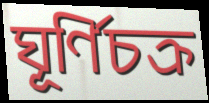
ঘূর্ণিচক্র